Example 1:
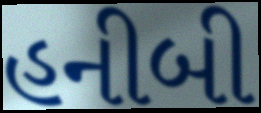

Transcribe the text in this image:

હનીબી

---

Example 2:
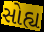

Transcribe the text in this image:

સોહ્ય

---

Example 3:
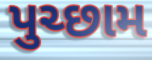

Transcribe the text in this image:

પુચ્છામ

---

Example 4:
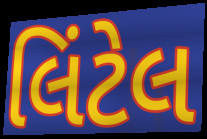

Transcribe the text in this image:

લિંટેલ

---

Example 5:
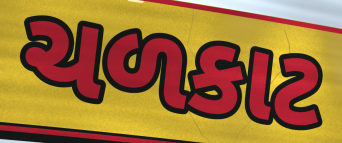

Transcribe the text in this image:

ચળકાટ